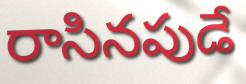
రాసినపుడే